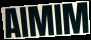
AIMIM